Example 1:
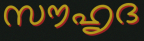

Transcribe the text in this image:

സൗഹൃദ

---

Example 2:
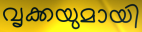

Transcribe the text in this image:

വൃക്കയുമായി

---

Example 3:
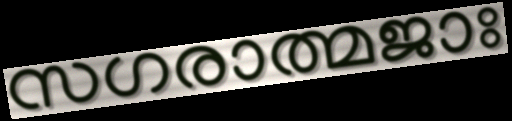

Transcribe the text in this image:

സഗരാത്മജാഃ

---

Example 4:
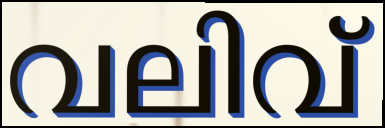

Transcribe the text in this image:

വലിവ്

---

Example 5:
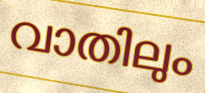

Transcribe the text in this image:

വാതിലും